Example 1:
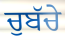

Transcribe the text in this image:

ਚੁਬੱਚੇ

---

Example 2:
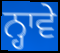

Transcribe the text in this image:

ਨ੍ਹਾਵੇ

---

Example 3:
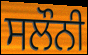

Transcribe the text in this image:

ਸਲੌਨੀ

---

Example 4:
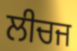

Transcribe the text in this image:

ਲੀਚਜ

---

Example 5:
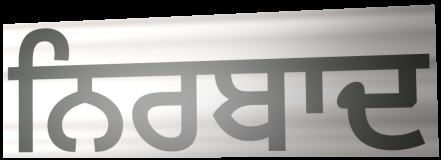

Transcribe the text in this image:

ਨਿਰਬਾਦ